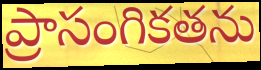
ప్రాసంగికతను